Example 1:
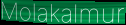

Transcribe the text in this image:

Molakalmur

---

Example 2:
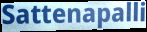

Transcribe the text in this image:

Sattenapalli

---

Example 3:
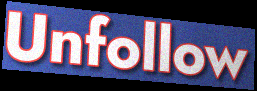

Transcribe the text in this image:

Unfollow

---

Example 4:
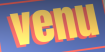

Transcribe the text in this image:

venu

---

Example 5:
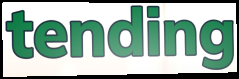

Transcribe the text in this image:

tending